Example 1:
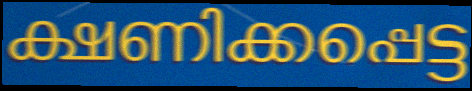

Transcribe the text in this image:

ക്ഷണിക്കപ്പെട്ട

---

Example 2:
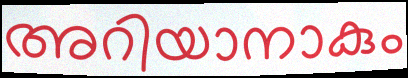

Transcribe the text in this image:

അറിയാനാകും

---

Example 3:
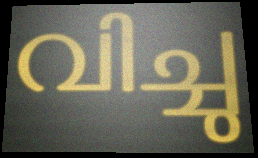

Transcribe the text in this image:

വിച്ചു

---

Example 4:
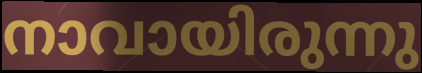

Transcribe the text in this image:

നാവായിരുന്നു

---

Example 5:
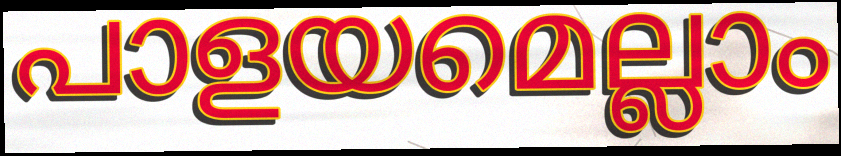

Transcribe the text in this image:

പാളയമെല്ലാം